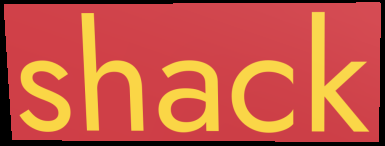
shack